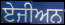
ਏਜੀਅਨ